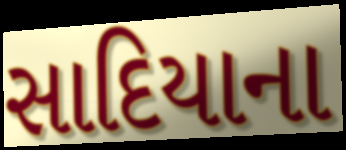
સાદિયાના